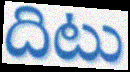
దిటు